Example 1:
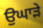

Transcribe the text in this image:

ਉਘਾੜੇ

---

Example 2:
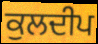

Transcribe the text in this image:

ਕੁਲਦੀਪ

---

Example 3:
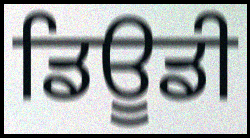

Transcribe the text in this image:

ਡਿਊਡੀ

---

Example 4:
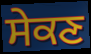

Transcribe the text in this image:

ਸੇਕਣ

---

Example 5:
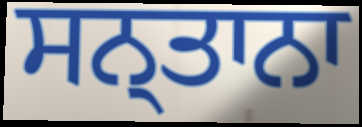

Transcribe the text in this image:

ਸਨ੍ਤਾਨਾ